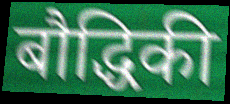
बौद्धिकी